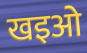
खइओ